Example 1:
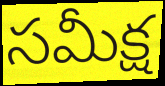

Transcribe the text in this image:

సమీక్ష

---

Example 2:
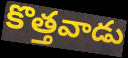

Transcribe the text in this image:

కొత్తవాడు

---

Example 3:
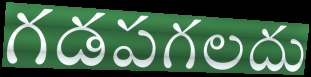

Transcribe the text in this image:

గడపగలదు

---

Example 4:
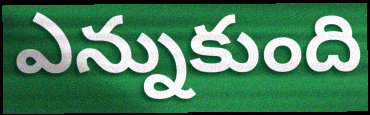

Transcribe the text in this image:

ఎన్నుకుంది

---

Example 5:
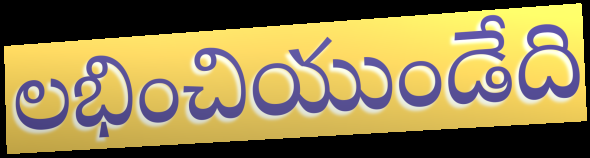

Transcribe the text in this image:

లభించియుండేది